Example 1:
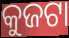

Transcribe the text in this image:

କୁଜଟା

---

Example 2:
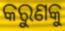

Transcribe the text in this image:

କରୁଣକୁ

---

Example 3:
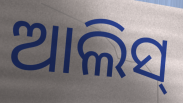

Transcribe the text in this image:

ଆଲିସ୍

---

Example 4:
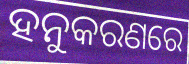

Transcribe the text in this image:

ହନୁକରଣରେ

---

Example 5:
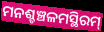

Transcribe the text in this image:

ମନଶ୍ଚଞ୍ଚଳମସ୍ଥିରମ୍